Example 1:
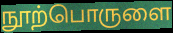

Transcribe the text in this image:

நூற்பொருளை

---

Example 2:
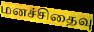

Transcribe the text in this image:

மனச்சிதைவு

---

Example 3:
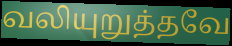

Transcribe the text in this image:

வலியுறுத்தவே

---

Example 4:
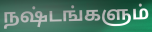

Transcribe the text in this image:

நஷ்டங்களும்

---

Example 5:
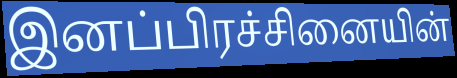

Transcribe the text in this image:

இனப்பிரச்சினையின்